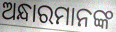
ଅନ୍ଧାରମାନଙ୍କ